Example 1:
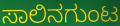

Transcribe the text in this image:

ಸಾಲಿನಗುಂಟ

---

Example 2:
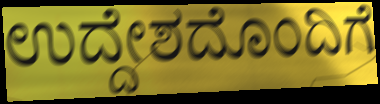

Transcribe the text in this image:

ಉದ್ದೇಶದೊಂದಿಗೆ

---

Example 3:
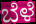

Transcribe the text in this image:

ಬೆಳೆ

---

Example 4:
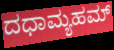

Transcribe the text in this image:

ದಧಾಮ್ಯಹಮ್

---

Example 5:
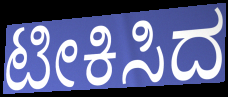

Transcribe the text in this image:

ಟೀಕಿಸಿದ